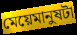
মেয়েমানুষটা